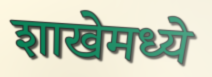
शाखेमध्ये